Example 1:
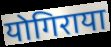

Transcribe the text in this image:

योगिराया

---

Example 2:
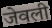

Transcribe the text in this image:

जेवली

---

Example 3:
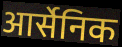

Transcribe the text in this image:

आर्सेनिक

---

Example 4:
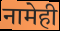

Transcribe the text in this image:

नामेही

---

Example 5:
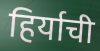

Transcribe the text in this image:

हिर्याची